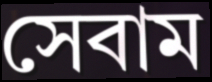
সেবাম